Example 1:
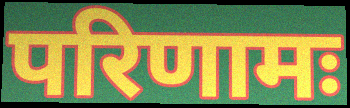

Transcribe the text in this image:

परिणामः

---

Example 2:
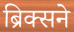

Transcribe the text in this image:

ब्रिक्सने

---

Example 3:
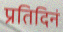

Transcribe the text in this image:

प्रतिदिनं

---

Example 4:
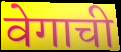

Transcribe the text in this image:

वेगाची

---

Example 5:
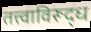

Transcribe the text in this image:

तत्त्वाविरूद्ध